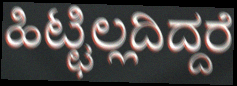
ಹಿಟ್ಟಿಲ್ಲದಿದ್ದರೆ